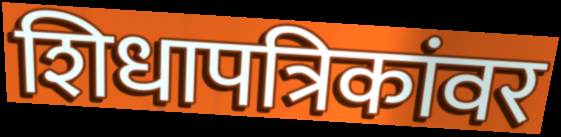
शिधापत्रिकांवर